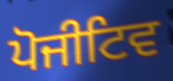
ਪੋਜੀਟਿਵ